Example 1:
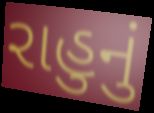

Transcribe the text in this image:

રાહુનું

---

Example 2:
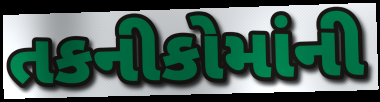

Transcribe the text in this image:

તકનીકોમાંની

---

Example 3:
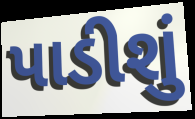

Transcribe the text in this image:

પાડીશું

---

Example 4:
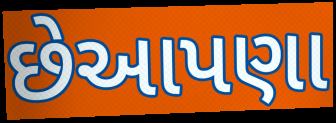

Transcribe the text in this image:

છેઆપણા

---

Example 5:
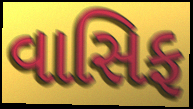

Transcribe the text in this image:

વાસિફ